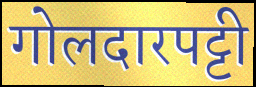
गोलदारपट्टी